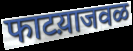
फाटय़ाजवळ